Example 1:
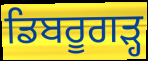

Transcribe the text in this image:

ਡਿਬਰੂਗੜ੍ਹ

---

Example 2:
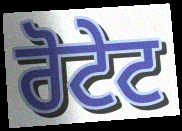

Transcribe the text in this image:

ਰੋਟੇਟ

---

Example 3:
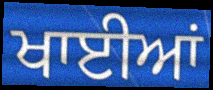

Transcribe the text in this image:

ਖਾਈਆਂ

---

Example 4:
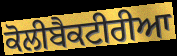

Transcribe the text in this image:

ਕੋਲੀਬੈਕਟੀਰੀਆ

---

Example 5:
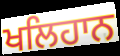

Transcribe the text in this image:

ਖਲਿਹਾਨ